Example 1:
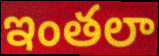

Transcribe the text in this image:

ఇంతలా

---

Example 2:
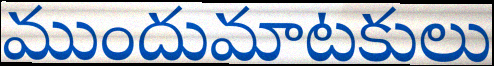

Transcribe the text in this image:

ముందుమాటకులు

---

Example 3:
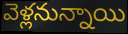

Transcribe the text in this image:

వెళ్లనున్నాయి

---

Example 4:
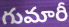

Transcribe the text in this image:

గుమారీ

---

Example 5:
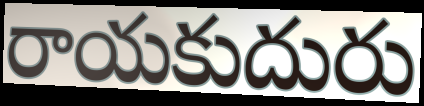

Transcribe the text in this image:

రాయకుదురు